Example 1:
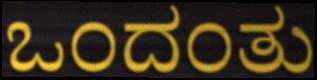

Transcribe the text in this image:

ಒಂದಂತು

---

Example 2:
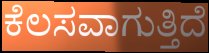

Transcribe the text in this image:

ಕೆಲಸವಾಗುತ್ತಿದೆ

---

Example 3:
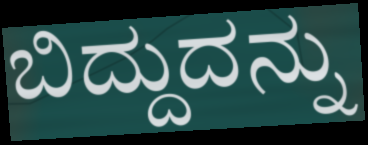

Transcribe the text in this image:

ಬಿದ್ದುದನ್ನು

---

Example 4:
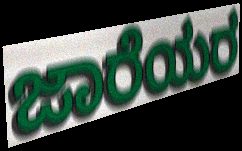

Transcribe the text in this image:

ಜಾರೆಯರ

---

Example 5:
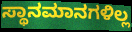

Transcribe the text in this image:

ಸ್ಥಾನಮಾನಗಳಿಲ್ಲ